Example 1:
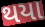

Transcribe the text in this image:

થયા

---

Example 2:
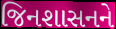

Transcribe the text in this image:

જિનશાસનને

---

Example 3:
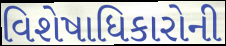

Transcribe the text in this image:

વિશેષાધિકારોની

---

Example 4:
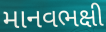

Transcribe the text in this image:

માનવભક્ષી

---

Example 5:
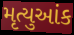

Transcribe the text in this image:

મૃત્યુઆંક